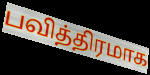
பவித்திரமாக